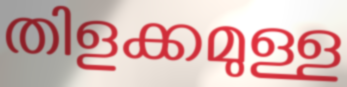
തിളക്കമുള്ള